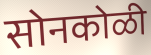
सोनकोळी